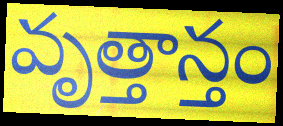
వృత్తాన్తం